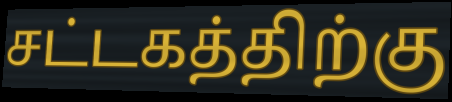
சட்டகத்திற்கு